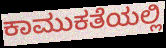
ಕಾಮುಕತೆಯಲ್ಲಿ